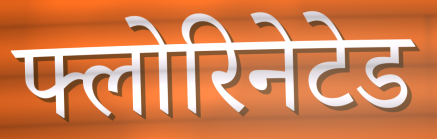
फ्लोरिनेटेड